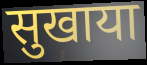
सुखाया